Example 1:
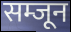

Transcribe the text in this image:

सम्जून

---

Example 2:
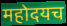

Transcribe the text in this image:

महोदयच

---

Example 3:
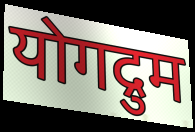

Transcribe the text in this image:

योगद्रुम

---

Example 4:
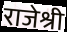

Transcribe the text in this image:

राजेश्री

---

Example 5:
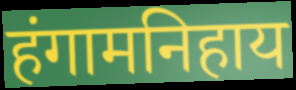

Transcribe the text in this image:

हंगामनिहाय